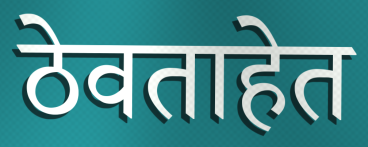
ठेवताहेत